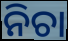
ନିଚା